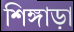
শিঙ্গাড়া